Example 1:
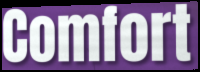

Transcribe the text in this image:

Comfort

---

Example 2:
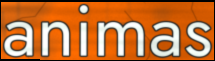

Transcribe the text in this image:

animas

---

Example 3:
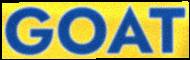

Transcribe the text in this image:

GOAT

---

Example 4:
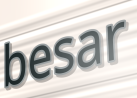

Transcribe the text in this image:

besar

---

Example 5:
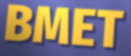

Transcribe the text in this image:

BMET